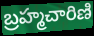
బ్రహ్మచారిణి